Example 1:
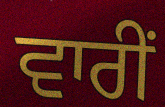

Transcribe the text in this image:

ਵਾਰੀਂ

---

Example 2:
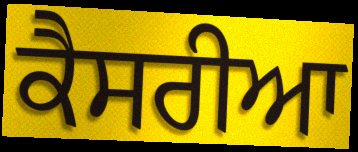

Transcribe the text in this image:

ਕੈਸਰੀਆ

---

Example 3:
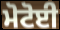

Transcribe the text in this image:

ਮੋਟੋਈ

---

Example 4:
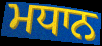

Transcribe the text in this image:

ਮਧਾਨ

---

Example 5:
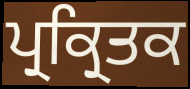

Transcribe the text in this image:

ਪ੍ਰਕ੍ਰਿਤਕ